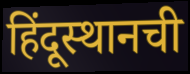
हिंदूस्थानची